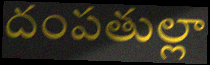
దంపతుల్లా